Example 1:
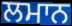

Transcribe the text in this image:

ਲਮਾਨ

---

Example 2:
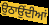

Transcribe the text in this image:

ਉਠਾਉਂਦੀਆਂ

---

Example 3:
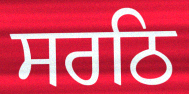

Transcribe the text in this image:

ਸਰਠਿ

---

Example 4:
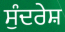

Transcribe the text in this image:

ਸੁੰਦਰੇਸ਼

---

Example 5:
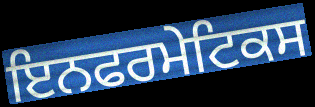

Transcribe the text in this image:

ਇਨਫਰਮੇਟਿਕਸ